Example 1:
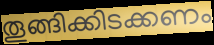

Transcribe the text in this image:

തൂങ്ങിക്കിടക്കണം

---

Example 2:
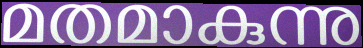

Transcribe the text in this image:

മതമാകുന്നു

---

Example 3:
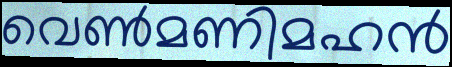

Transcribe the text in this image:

വെൺമണിമഹൻ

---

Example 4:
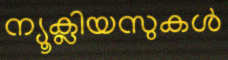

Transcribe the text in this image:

ന്യൂക്ലിയസുകൾ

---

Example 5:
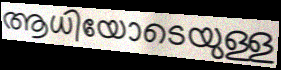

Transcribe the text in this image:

ആധിയോടെയുള്ള